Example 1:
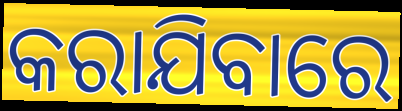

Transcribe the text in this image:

କରାଯିବାରେ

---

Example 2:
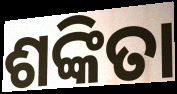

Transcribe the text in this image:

ଶଙ୍କିତା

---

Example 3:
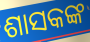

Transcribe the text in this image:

ଶାସକଙ୍କ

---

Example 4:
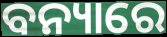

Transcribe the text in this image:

ବନ୍ୟାରେ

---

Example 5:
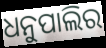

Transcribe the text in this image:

ଧନୁପାଲିର